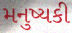
મનુષ્યકી